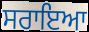
ਸਰਾਇਆ